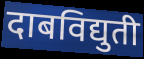
दाबविद्युती